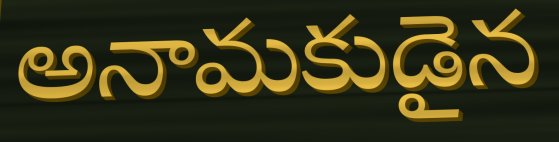
అనామకుడైన